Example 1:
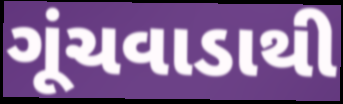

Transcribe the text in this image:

ગૂંચવાડાથી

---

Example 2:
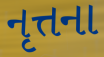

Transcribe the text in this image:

નૃત્તના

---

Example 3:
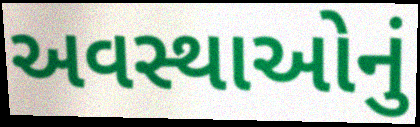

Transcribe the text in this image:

અવસ્થાઓનું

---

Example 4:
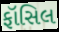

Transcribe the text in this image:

ફૉસિલ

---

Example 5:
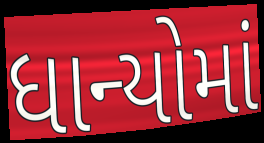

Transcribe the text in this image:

ધાન્યોમાં